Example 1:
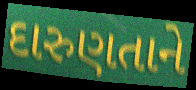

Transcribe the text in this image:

દારુણતાને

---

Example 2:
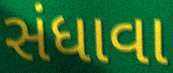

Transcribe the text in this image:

સંધાવા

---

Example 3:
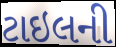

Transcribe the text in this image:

ટાઇલની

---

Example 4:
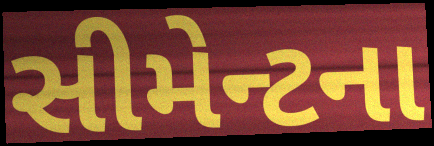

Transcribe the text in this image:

સીમેન્ટના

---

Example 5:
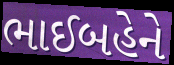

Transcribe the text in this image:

ભાઈબહેને